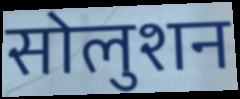
सोलुशन